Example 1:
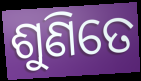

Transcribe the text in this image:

ଶୁଣିତେ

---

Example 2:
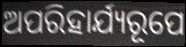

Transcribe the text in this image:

ଅପରିହାର୍ଯ୍ୟରୂପେ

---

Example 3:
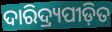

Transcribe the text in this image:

ଦାରିଦ୍ର୍ୟପୀଡ଼ିତ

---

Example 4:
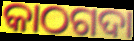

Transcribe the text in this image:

କାଠଗଦା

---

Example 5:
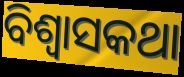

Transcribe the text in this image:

ବିଶ୍ଵାସକଥା